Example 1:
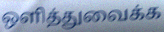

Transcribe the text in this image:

ஒளித்துவைக்க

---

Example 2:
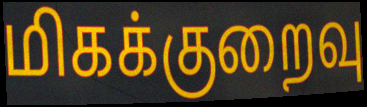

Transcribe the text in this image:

மிகக்குறைவு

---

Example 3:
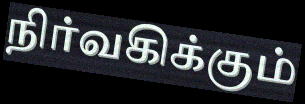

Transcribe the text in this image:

நிர்வகிக்கும்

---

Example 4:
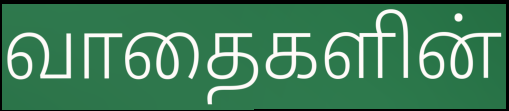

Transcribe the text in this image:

வாதைகளின்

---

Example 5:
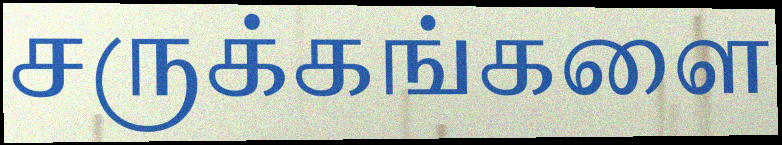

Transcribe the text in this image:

சருக்கங்களை